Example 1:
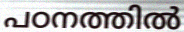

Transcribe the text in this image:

പഠനത്തിൽ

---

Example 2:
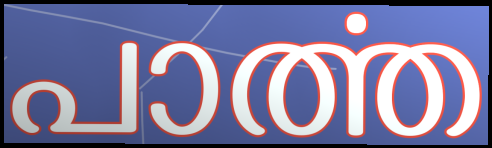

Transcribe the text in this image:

പാൎത്ത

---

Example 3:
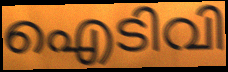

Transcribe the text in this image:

ഐടിവി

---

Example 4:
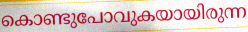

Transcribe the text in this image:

കൊണ്ടുപോവുകയായിരുന്ന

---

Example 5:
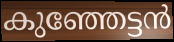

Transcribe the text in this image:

കുഞ്ഞേട്ടൻ